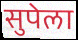
सुपेला